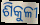
ଶିକୁଳୀ